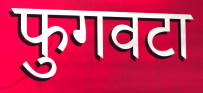
फुगवटा